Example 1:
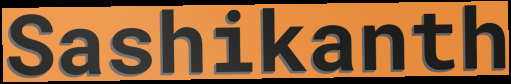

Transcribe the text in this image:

Sashikanth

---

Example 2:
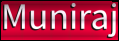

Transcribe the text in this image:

Muniraj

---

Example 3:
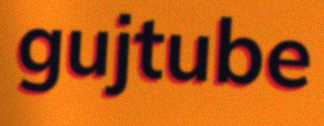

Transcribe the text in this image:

gujtube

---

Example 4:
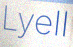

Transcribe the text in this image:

Lyell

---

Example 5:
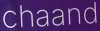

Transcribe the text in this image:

chaand